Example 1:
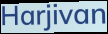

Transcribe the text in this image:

Harjivan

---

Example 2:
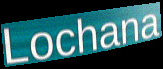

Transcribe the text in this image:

Lochana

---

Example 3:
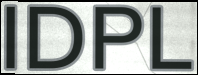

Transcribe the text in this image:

IDPL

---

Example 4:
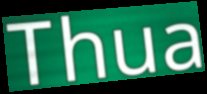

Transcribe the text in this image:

Thua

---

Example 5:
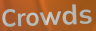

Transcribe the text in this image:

Crowds